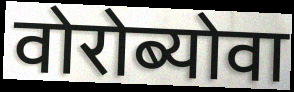
वोरोब्योवा